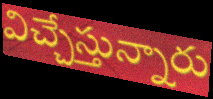
విచ్చేస్తున్నారు